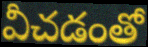
వీచడంతో